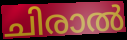
ചിരാൽ